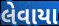
લેવાયા